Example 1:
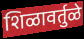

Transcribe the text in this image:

शिळावर्तुळे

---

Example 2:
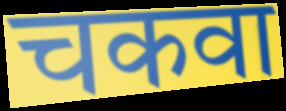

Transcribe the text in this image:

चकवा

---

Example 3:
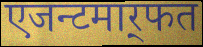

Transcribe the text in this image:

एजन्टमार्फत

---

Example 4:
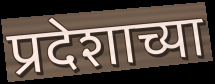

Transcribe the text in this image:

प्रदेशाच्या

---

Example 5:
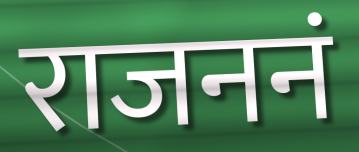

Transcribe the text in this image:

राजननं